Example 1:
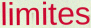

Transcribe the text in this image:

limites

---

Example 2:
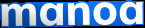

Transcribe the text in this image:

manoa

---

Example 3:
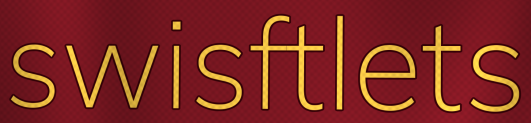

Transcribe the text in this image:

swisftlets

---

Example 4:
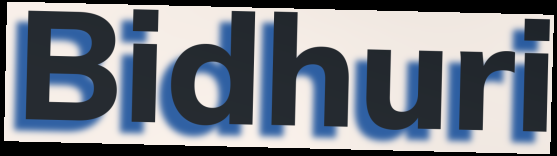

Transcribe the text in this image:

Bidhuri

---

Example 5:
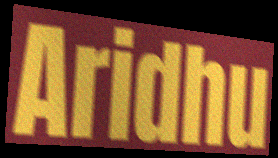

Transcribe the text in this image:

Aridhu